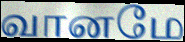
வானமே